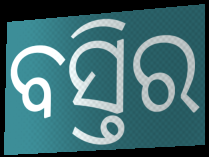
ବସ୍ତିର